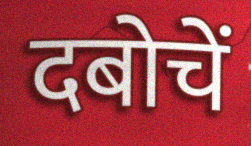
दबोचें